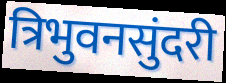
त्रिभुवनसुंदरी